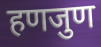
हणजुण